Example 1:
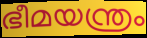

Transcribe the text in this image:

ഭീമയന്ത്രം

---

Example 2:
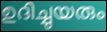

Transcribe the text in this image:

ഉദിച്ചുയരും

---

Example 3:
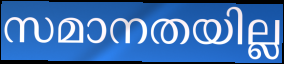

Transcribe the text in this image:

സമാനതയില്ല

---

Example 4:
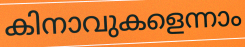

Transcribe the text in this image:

കിനാവുകളെന്നാം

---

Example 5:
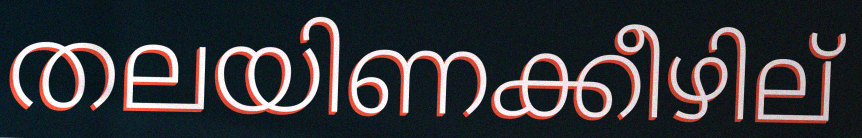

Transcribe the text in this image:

തലയിണക്കീഴില്